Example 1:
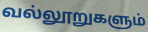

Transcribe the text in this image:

வல்லூறுகளும்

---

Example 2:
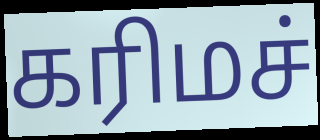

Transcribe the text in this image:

கரிமச்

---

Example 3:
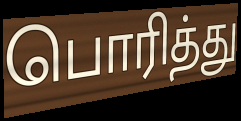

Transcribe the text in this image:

பொரித்து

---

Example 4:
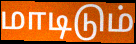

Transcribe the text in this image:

மாடிடும்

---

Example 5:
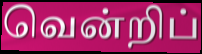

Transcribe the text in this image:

வென்றிப்